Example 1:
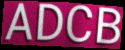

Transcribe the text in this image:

ADCB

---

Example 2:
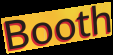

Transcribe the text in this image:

Booth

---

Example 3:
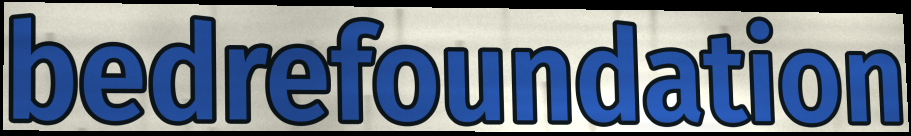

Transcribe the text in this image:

bedrefoundation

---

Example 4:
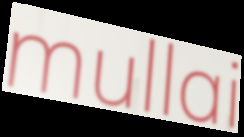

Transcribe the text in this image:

mullai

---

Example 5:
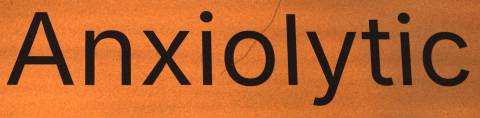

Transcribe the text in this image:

Anxiolytic